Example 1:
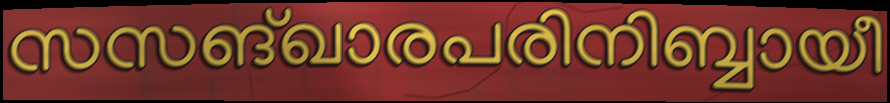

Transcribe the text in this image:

സസങ്ഖാരപരിനിബ്ബായീ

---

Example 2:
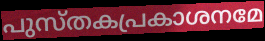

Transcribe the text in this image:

പുസ്തകപ്രകാശനമേ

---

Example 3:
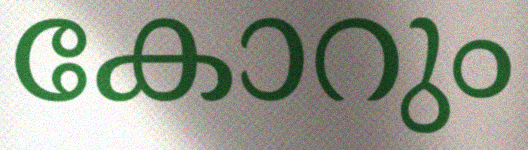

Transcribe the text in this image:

കോറും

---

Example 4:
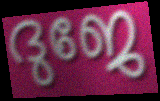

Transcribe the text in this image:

ദുജേ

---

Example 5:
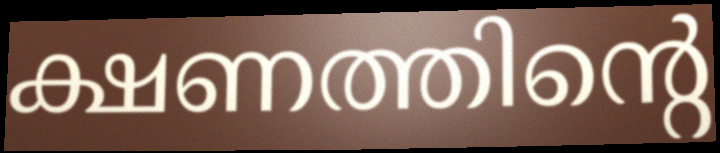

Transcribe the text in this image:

ക്ഷണത്തിന്റെ